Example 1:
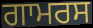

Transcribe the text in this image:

ਗਾਮਰਸ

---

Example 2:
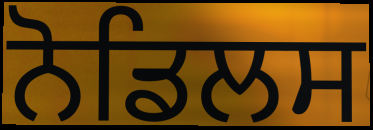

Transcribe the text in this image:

ਨੋਡਿਲਸ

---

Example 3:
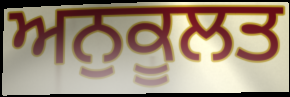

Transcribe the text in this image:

ਅਨੁਕੂਲਤ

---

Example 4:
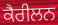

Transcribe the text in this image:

ਕੈਰੀਲਨ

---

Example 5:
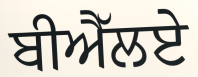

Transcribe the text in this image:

ਬੀਐੱਲਏ